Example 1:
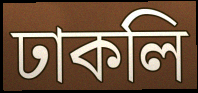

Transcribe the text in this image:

ঢাকলি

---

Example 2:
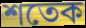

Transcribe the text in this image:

শতেক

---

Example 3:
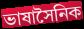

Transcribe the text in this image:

ভাষাসৈনিক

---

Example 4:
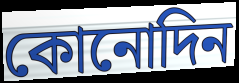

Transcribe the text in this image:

কোনোদিন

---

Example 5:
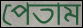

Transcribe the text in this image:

পেতাম